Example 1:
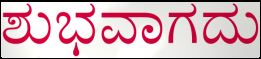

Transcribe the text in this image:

ಶುಭವಾಗದು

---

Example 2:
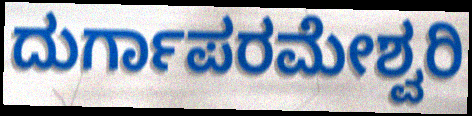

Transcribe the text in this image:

ದುರ್ಗಾಪರಮೇಶ್ವರಿ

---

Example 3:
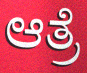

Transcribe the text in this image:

ಆತ್ರೆ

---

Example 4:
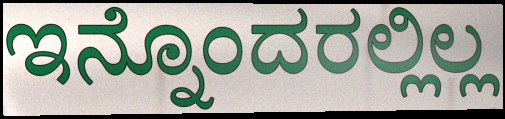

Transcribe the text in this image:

ಇನ್ನೊಂದರಲ್ಲಿಲ್ಲ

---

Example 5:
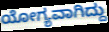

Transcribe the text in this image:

ಯೋಗ್ಯವಾಗಿದ್ದು